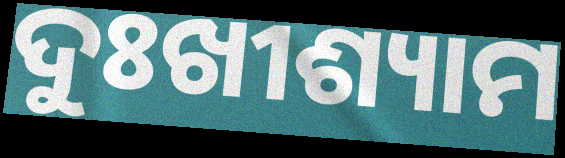
ଦୁଃଖୀଶ୍ୟାମ